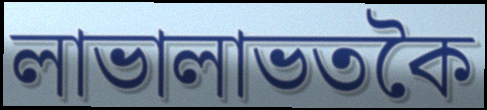
লাভালাভতকৈ